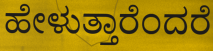
ಹೇಳುತ್ತಾರೆಂದರೆ